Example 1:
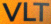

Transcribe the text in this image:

VLT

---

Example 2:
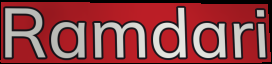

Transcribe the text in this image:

Ramdari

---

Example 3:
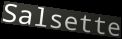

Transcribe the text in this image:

Salsette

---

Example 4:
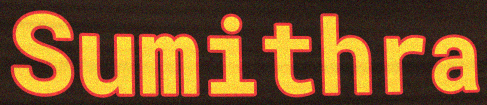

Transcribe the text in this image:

Sumithra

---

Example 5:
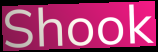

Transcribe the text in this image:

Shook